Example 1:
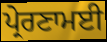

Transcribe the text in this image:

ਪ੍ਰੇਰਣਾਮਈ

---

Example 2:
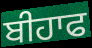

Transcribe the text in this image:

ਬੀਹਾਫ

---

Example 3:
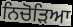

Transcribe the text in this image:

ਨਿਚੋੜਿਆ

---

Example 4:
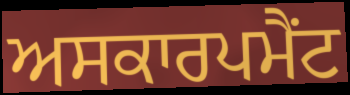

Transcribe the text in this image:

ਅਸਕਾਰਪਮੈਂਟ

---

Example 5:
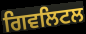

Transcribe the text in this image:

ਗਿਵਲਿਟਲ